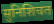
सुनिशिचत